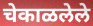
चेकाळलेले